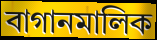
বাগানমালিক